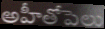
అహీతోపెలు